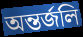
অন্তর্জলি